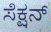
ಸೆಕ್ಷನ್